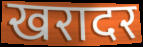
खरादर